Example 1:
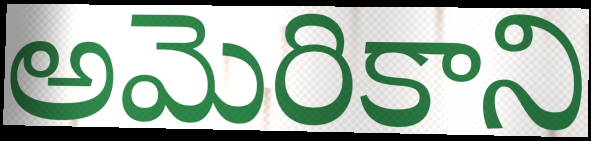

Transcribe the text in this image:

అమెరికాని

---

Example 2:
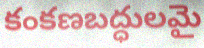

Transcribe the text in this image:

కంకణబద్ధులమై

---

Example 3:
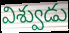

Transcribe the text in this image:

విశ్వుడు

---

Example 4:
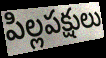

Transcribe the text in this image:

పిల్లపక్షులు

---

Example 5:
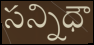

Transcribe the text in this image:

సన్నిధౌ